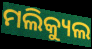
ମଲିକ୍ୟୁଲ